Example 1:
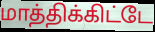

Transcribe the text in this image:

மாத்திக்கிட்டே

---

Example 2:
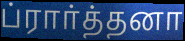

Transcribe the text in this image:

ப்ரார்த்தனா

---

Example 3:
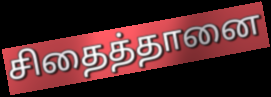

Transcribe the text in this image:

சிதைத்தானை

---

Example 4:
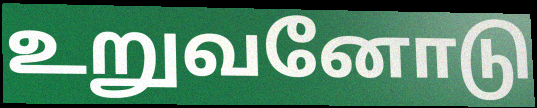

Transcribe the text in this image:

உறுவனோடு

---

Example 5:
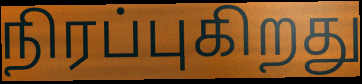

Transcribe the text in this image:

நிரப்புகிறது